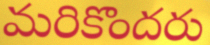
మరికొందరు